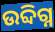
ଉବ୍ଦିଗ୍ନ